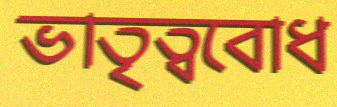
ভাতৃত্ববোধ